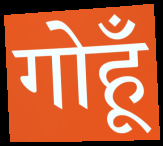
गोहूँ